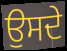
ਉਸਦੇ